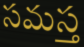
సమస్త